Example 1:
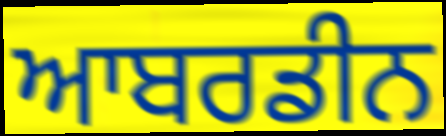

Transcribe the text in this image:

ਆਬਰਡੀਨ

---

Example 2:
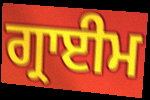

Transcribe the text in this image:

ਗ੍ਰਾਈਮ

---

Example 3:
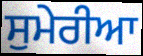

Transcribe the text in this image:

ਸੁਮੇਰੀਆ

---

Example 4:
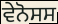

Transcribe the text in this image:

ਵੇਨੋਸਸ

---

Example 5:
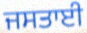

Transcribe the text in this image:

ਜਸਤਾਈ